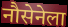
नौसेनेला